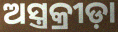
ଅସ୍ତ୍ରକ୍ରୀଡ଼ା